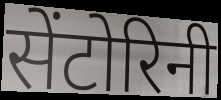
सेंटोरिनी